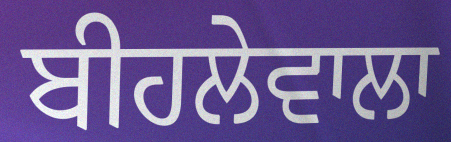
ਬੀਹਲੇਵਾਲਾ